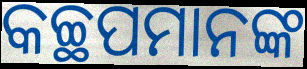
କଚ୍ଛପମାନଙ୍କ